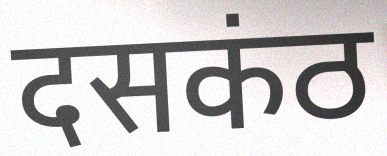
दसकंठ